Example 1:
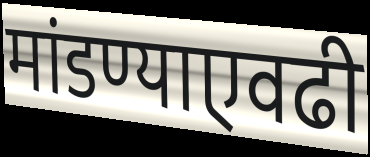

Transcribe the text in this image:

मांडण्याएवढी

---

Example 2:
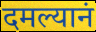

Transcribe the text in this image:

दमल्यानं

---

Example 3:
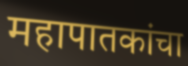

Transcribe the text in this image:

महापातकांचा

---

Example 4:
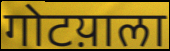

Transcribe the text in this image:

गोटय़ाला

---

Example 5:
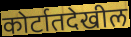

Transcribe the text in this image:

कोर्टातदेखील